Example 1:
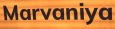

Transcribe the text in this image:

Marvaniya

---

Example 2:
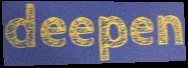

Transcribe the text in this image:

deepen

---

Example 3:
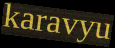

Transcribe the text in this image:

karavyu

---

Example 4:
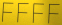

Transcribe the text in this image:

FFFF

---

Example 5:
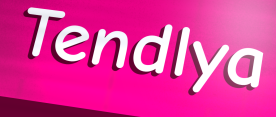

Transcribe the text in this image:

Tendlya